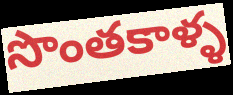
సొంతకాళ్ళ